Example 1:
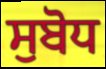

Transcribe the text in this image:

ਸੁਬੋਧ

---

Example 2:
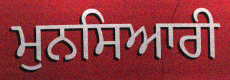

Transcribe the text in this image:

ਮੁਨਸਿਆਰੀ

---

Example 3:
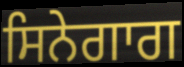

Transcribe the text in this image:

ਸਿਨੇਗਾਗ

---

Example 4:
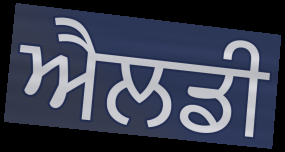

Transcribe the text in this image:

ਐਲਡੀ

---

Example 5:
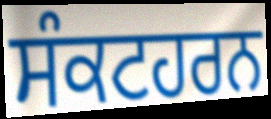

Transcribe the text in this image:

ਸੰਕਟਹਰਨ